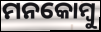
ମନକୋମ୍ବୁ